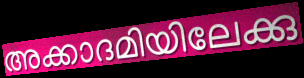
അക്കാദമിയിലേക്കു